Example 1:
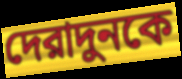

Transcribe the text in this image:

দেরাদুনকে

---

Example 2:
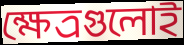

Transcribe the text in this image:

ক্ষেত্রগুলোই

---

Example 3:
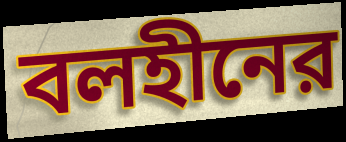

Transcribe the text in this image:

বলহীনের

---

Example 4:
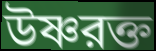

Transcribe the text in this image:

উষ্ণরক্ত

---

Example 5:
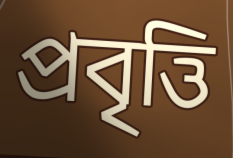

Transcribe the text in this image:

প্রবৃত্তি